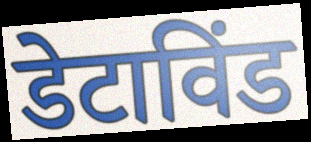
डेटाविंड